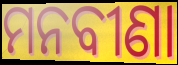
ମନବୀଣା